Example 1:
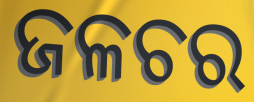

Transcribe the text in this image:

ଜଳଚର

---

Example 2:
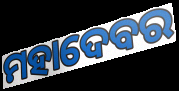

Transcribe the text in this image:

ମହାଦେବର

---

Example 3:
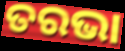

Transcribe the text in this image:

ତରଭା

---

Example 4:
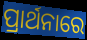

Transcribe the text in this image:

ପ୍ରାର୍ଥନାରେ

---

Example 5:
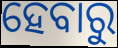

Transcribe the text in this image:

ହେବାରୁ